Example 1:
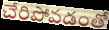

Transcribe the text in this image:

చేరిపోవడంతో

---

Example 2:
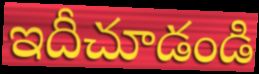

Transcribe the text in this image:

ఇదీచూడండి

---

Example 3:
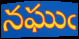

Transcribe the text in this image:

నఘుఁ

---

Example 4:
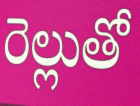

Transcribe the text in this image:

రెల్లుతో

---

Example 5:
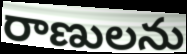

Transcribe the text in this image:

రాణులను